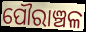
ପୌରାଞ୍ଚଳ